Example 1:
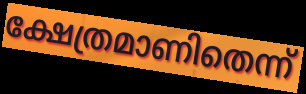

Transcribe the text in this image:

ക്ഷേത്രമാണിതെന്ന്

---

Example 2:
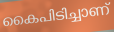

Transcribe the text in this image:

കൈപിടിച്ചാണ്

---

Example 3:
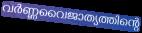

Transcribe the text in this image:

വർണ്ണവൈജാത്യത്തിന്റെ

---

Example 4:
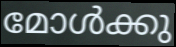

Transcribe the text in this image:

മോൾക്കു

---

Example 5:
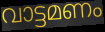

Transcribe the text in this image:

വാട്ടമണം